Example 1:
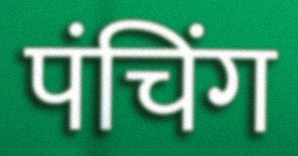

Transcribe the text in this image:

पंचिंग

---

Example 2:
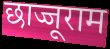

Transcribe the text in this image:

छाज्जूराम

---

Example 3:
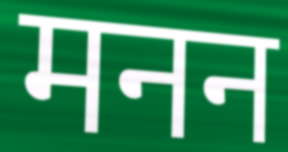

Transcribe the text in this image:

मनन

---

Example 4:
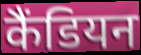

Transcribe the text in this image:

कैंडियन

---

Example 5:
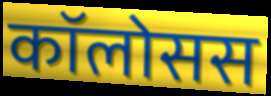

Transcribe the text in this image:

कॉलोसस